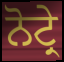
ਨੋਟ੍ਰੇ